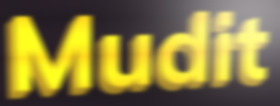
Mudit